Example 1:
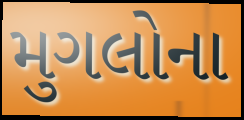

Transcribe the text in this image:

મુગલોના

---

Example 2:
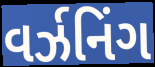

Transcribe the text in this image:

વર્ઝનિંગ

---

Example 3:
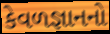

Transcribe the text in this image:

કેવળજ્ઞાનનો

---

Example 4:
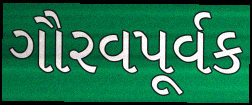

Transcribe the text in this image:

ગૌરવપૂર્વક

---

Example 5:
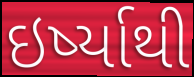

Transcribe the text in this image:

ઇર્ષ્યાથી